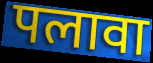
पलावा